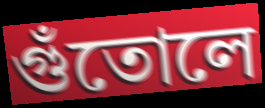
গুঁতোলে